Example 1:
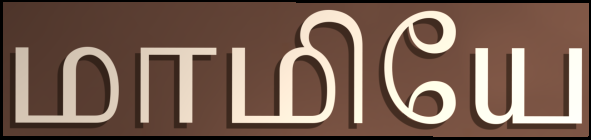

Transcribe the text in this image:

மாமியே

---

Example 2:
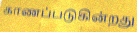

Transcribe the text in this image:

காணப்படுகின்றது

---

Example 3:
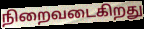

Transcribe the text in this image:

நிறைவடைகிறது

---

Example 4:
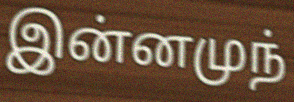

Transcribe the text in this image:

இன்னமுந்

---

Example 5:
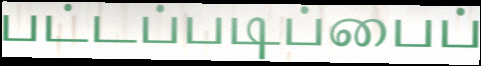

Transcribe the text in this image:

பட்டப்படிப்பைப்